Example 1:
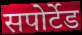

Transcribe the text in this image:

सपोर्टेड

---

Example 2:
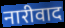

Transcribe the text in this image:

नारीवाद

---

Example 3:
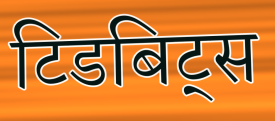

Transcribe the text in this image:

टिडबिट्स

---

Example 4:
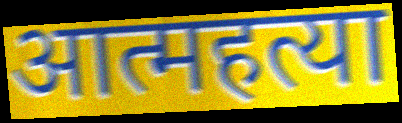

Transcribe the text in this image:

आत्महत्या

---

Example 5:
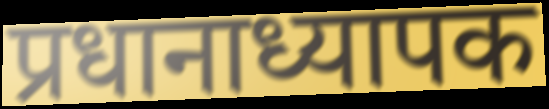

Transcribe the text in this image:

प्रधानाध्यापक